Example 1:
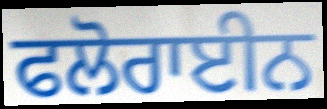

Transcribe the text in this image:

ਫਲੋਰਾਈਨ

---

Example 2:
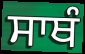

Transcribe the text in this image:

ਸਾਥੰ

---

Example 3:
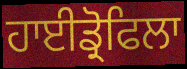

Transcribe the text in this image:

ਹਾਈਡ੍ਰੋਫਿਲਾ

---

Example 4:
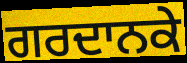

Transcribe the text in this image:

ਗਰਦਾਨਕੇ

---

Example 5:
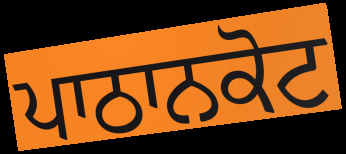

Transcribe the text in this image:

ਪਾਠਾਨਕੋਟ